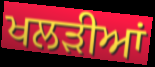
ਖਲੜੀਆਂ